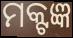
ମକ୍ଟଜ୍ଞ